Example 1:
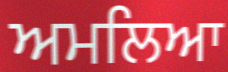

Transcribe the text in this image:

ਅਮਲਿਆ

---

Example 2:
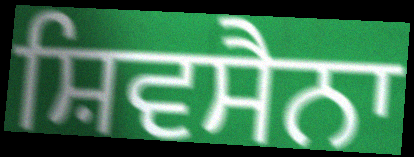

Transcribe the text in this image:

ਸ਼ਿਵਸੈਨਾ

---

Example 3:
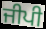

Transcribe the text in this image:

ਜੀਪੀ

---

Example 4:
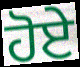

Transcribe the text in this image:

ਹੋਏੇ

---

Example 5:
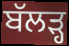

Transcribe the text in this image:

ਬੱਲੜ੍ਹ